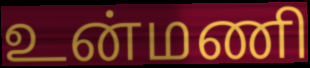
உன்மணி